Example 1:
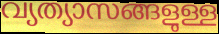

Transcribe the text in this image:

വ്യത്യാസങ്ങളുള്ള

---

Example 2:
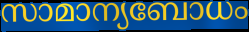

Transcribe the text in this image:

സാമാന്യബോധം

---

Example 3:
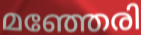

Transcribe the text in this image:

മഞ്ഞേരി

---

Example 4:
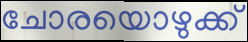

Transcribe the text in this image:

ചോരയൊഴുക്ക്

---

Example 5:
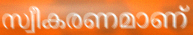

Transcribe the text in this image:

സ്വീകരണമാണ്